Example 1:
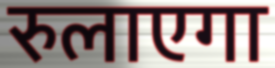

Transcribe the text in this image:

रुलाएगा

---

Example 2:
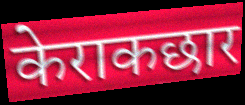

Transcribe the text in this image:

केराकछार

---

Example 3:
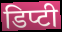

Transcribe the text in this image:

डिप्‍टी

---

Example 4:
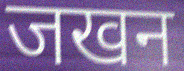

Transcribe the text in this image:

जखन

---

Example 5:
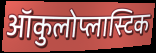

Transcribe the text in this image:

ऑकुलोप्लास्टिक